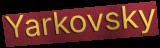
Yarkovsky